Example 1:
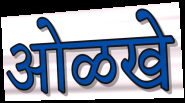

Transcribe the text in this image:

ओळखे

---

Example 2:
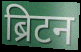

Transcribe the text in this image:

ब्रिटन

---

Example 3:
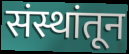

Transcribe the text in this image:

संस्थांतून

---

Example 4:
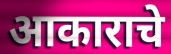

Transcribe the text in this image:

आकाराचे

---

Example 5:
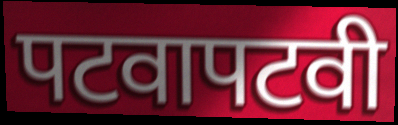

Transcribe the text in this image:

पटवापटवी